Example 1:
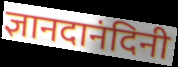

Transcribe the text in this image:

ज्ञानदानंदिनी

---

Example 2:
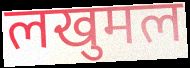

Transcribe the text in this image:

लखुमल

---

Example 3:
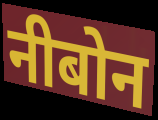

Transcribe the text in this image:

नीबोन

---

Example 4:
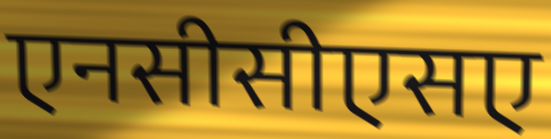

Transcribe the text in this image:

एनसीसीएसए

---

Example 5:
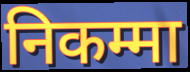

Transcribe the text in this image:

निकम्मा